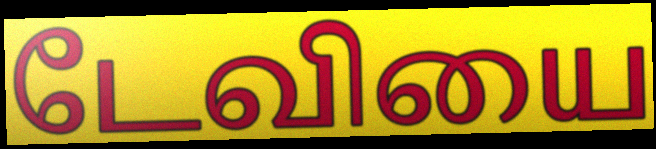
டேவியை